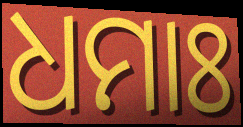
ଧମାଃ